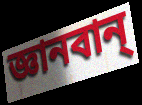
জ্ঞানবান্